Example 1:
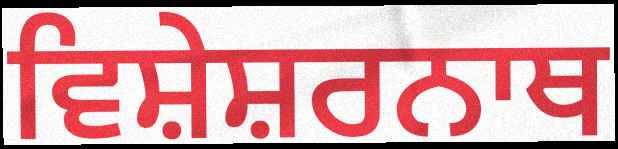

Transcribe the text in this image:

ਵਿਸ਼ੇਸ਼ਰਨਾਥ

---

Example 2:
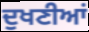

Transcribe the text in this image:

ਦੁਖਣੀਆਂ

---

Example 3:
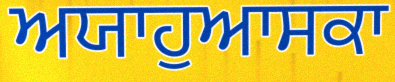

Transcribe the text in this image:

ਅਯਾਹੁਆਸਕਾ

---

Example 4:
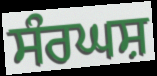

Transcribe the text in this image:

ਸੰਰਘਸ਼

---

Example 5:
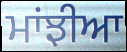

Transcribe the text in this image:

ਮਾਂਝੀਆ